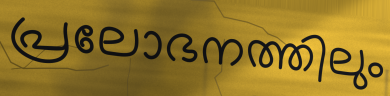
പ്രലോഭനത്തിലും